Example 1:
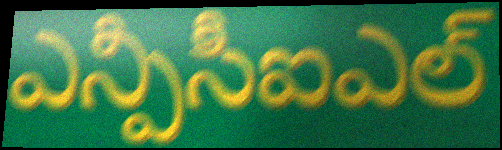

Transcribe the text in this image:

ఎన్పీసీఐఎల్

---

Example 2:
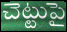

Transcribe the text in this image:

చెట్టుపై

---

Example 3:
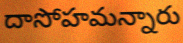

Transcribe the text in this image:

దాసోహమన్నారు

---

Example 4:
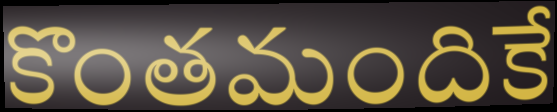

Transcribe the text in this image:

కొంతమందికే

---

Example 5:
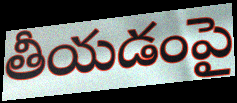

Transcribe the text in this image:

తీయడంపై